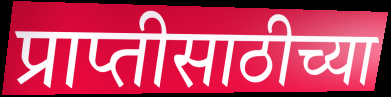
प्राप्तीसाठीच्या